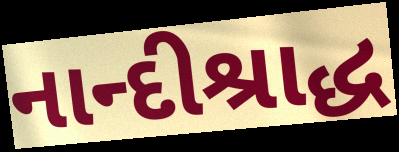
નાન્દીશ્રાદ્ધ